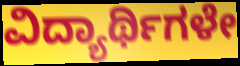
ವಿದ್ಯಾರ್ಥಿಗಳೇ